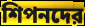
শিপনদের